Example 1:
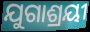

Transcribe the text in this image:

ଯୁଗାଶ୍ରୟୀ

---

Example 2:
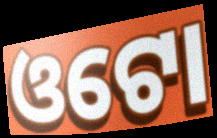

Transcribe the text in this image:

ଓଟୋ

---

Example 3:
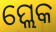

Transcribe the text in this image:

ପ୍ଲେକ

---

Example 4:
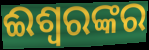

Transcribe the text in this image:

ଈଶ୍ୱରଙ୍କର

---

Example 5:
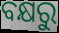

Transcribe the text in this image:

ବକ୍ଷରୁ